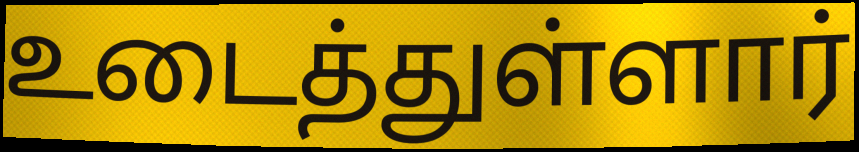
உடைத்துள்ளார்